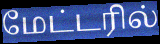
மேட்டரில்